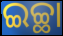
ଇଚ୍ଛା